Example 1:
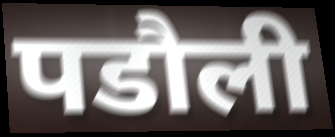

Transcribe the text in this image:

पडौली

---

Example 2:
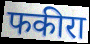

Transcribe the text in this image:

फकीरा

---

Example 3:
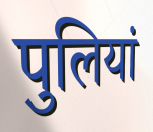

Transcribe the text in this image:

पुलियां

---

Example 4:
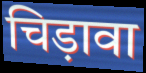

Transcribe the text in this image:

चिड़ावा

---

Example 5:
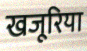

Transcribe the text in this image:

खजूरिया